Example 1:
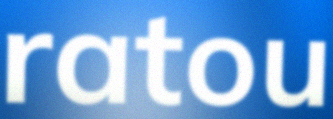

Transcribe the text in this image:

ratou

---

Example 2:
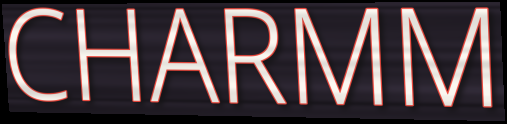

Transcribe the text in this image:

CHARMM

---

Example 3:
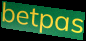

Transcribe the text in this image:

betpas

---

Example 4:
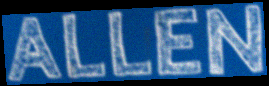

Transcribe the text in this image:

ALLEN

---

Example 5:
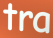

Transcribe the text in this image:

tra